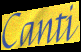
Canti